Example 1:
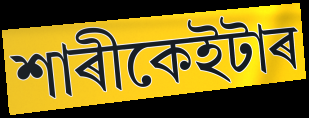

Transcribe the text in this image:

শাৰীকেইটাৰ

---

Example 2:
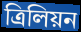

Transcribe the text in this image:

ত্ৰিলিয়ন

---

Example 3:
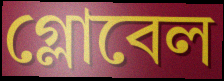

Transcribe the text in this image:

গ্লোবেল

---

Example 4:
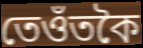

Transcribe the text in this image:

তেওঁতকৈ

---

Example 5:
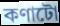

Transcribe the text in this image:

কণাটো